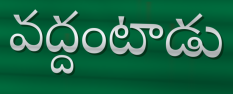
వద్దంటాడు